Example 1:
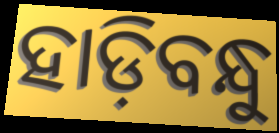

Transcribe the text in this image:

ହାଡ଼ିବନ୍ଧୁ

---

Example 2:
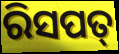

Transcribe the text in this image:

ରିସପତ୍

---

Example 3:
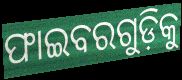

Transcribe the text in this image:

ଫାଇବରଗୁଡ଼ିକୁ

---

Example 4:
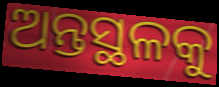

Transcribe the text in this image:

ଅନ୍ତସ୍ଥଳକୁ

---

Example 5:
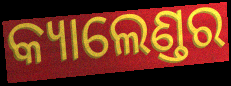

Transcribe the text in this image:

କ୍ୟାଲେଣ୍ଡର